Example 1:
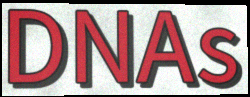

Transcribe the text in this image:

DNAs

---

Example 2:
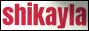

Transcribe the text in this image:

shikayla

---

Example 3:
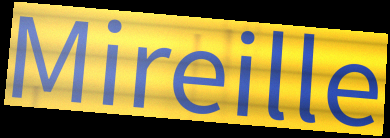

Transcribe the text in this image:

Mireille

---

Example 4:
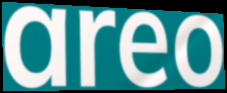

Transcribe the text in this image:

areo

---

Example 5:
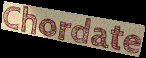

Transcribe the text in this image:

Chordate